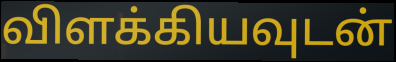
விளக்கியவுடன்